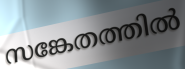
സങ്കേതത്തിൽ